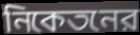
নিকেতনের